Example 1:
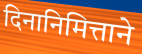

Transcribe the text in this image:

दिनानिमित्ताने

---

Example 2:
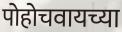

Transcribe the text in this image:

पोहोचवायच्या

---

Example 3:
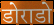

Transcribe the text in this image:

डोराडो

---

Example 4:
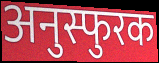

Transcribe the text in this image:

अनुस्फुरक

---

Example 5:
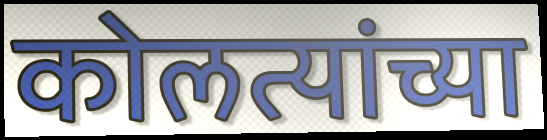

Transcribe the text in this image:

कोलत्यांच्या